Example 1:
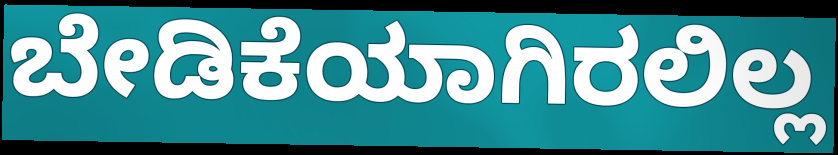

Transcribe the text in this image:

ಬೇಡಿಕೆಯಾಗಿರಲಿಲ್ಲ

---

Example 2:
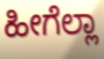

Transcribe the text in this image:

ಹೀಗೆಲ್ಲಾ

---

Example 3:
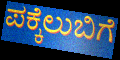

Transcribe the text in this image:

ಪಕ್ಕೆಲುಬಿಗೆ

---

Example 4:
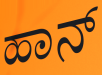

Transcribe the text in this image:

ಹಾನ್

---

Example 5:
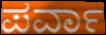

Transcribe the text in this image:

ಪರ್ವಾ